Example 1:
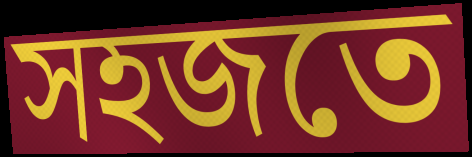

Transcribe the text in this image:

সহজতে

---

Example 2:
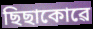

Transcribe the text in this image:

ছিছাকোৱে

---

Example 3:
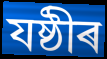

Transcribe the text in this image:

যষ্ঠীৰ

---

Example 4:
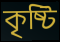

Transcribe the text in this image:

কৃষ্টি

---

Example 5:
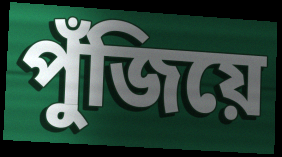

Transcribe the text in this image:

পুঁজিয়ে